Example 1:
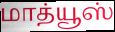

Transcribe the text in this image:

மாத்யூஸ்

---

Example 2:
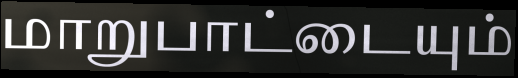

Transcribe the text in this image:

மாறுபாட்டையும்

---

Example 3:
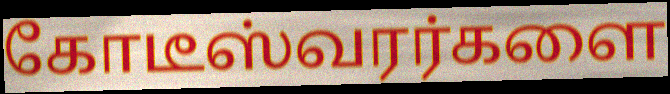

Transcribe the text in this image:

கோடீஸ்வரர்களை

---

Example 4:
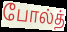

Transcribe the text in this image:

போல்த்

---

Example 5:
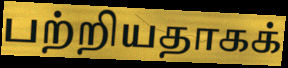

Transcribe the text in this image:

பற்றியதாகக்